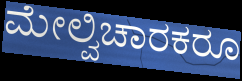
ಮೇಲ್ವಿಚಾರಕರೂ